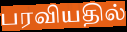
பரவியதில்